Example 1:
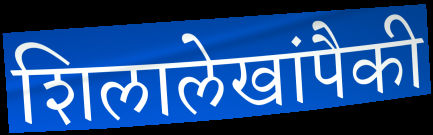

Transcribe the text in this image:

शिलालेखांपैकी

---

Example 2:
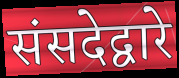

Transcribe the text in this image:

संसदेद्वारे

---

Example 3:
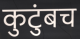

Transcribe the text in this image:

कुटुंबच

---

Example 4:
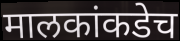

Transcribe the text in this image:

मालकांकडेच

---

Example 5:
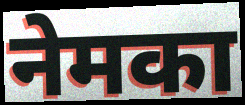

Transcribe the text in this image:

नेमका